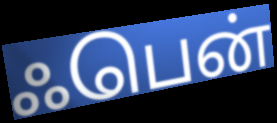
ஃபென்